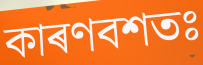
কাৰণবশতঃ